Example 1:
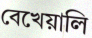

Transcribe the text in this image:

বেখেয়ালি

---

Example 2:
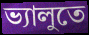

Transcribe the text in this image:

ভ্যালুতে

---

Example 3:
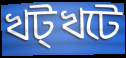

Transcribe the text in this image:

খট্‌খটে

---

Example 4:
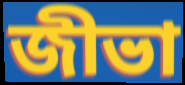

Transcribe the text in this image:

জীভা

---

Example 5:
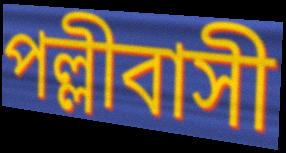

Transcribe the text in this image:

পল্লীবাসী